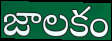
జాలకం